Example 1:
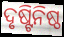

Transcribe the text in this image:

ଦୃଷ୍ଟିନିଷ୍ଠ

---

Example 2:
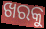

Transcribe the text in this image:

ଖରକୁ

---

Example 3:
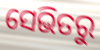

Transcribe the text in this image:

ସେଭିତରୁ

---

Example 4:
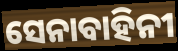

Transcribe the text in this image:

ସେନାବାହିନୀ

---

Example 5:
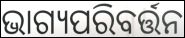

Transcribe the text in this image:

ଭାଗ୍ୟପରିବର୍ତ୍ତନ